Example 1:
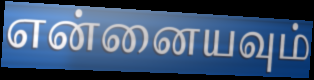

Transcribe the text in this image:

என்னையவும்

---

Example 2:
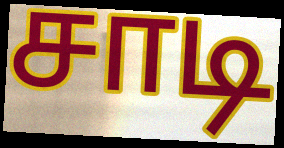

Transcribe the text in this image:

சாடி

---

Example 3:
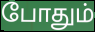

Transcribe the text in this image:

போதும்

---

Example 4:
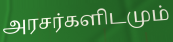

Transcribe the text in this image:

அரசர்களிடமும்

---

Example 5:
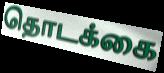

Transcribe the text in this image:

தொடக்கை